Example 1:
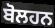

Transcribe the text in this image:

ਬੋਲਹਨ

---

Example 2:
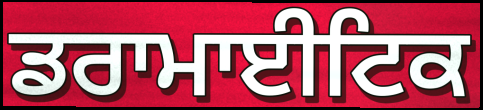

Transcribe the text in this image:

ਡਰਾਮਾਈਟਿਕ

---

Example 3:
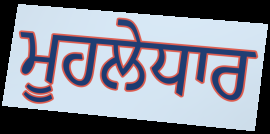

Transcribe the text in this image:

ਮੂਹਲੇਧਾਰ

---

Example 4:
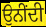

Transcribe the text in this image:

ਉਨੀਂਦੀ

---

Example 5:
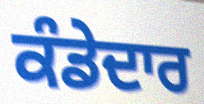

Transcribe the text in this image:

ਕੰਡੇਦਾਰ